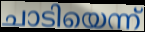
ചാടിയെന്ന്